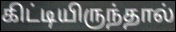
கிட்டியிருந்தால்